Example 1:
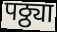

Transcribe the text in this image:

पठ्ठ्या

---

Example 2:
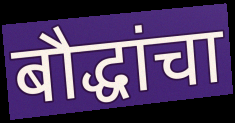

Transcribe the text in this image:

बौद्धांचा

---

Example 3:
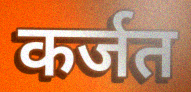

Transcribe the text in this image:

कर्जत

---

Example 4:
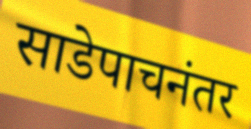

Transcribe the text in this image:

साडेपाचनंतर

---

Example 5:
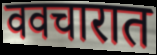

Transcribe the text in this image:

ववचारात